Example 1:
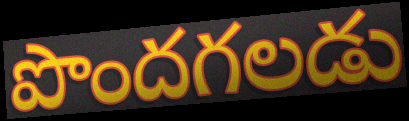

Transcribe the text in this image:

పొందగలడు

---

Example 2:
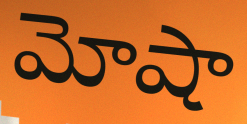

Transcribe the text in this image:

మోషా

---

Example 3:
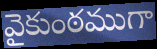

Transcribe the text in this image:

వైకుంఠముగా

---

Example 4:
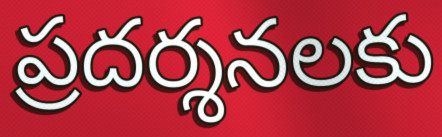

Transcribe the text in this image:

ప్రదర్శనలకు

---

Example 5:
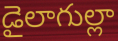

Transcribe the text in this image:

డైలాగుల్లా